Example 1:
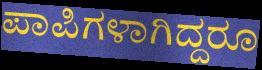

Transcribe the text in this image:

ಪಾಪಿಗಳಾಗಿದ್ದರೂ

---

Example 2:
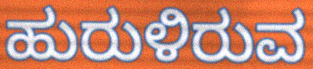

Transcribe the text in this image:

ಹುರುಳಿರುವ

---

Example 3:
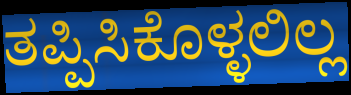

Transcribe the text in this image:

ತಪ್ಪಿಸಿಕೊಳ್ಳಲಿಲ್ಲ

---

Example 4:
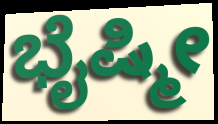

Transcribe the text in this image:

ಭೈಷ್ಮೀ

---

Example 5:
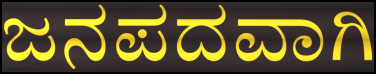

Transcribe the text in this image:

ಜನಪದವಾಗಿ